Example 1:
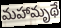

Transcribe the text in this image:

మహామృథే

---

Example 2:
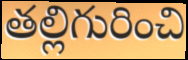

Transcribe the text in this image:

తల్లిగురించి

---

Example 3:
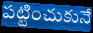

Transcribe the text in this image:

పట్టించుకునే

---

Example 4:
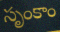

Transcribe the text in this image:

సృంకాం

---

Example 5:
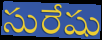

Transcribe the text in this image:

సురేషు